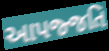
આપજ્જતિ